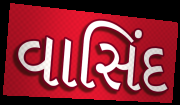
વાસિંદ